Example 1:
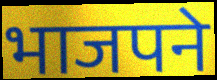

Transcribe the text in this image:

भाजपने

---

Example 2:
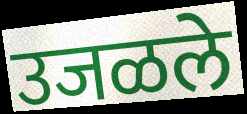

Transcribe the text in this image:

उजळले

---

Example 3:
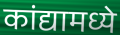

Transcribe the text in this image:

कांद्यामध्ये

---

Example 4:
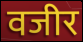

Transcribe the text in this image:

वजीर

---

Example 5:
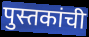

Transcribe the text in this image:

पुस्तकांची